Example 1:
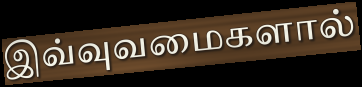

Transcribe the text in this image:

இவ்வுவமைகளால்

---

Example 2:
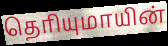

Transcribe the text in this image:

தெரியுமாயின்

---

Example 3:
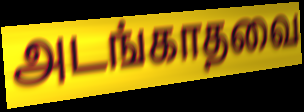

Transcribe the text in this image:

அடங்காதவை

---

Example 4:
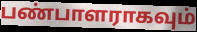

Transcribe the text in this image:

பண்பாளராகவும்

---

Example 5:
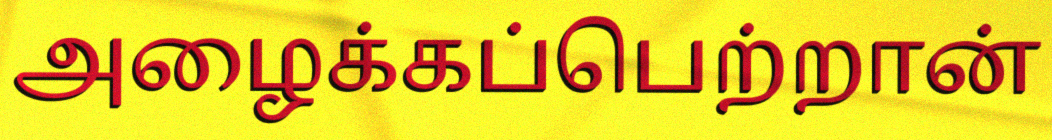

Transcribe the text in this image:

அழைக்கப்பெற்றான்